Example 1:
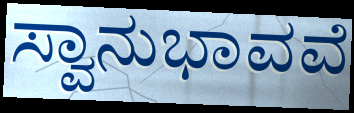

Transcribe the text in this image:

ಸ್ವಾನುಭಾವವೆ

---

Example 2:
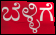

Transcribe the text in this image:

ಬೆಳ್ಳಿಗೆ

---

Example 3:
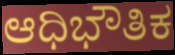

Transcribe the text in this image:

ಆಧಿಭೌತಿಕ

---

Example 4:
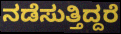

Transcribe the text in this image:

ನಡೆಸುತ್ತಿದ್ದರೆ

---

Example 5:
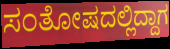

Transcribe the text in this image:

ಸಂತೋಷದಲ್ಲಿದ್ದಾಗ